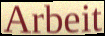
Arbeit